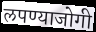
लपण्याजोगी